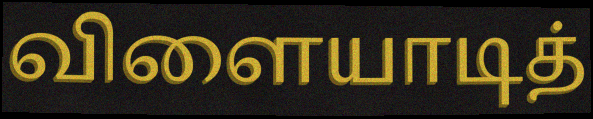
விளையாடித்